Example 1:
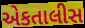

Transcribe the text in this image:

એકતાલીસ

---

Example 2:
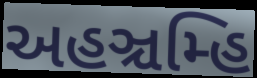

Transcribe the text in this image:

અહઞ્ચમ્હિ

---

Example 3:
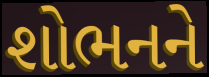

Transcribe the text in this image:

શોભનને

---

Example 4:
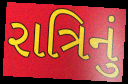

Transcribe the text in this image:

રાત્રિનું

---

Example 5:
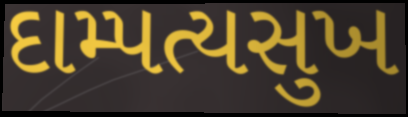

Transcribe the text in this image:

દામ્પત્યસુખ